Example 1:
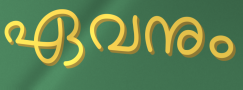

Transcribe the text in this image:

ഏവനും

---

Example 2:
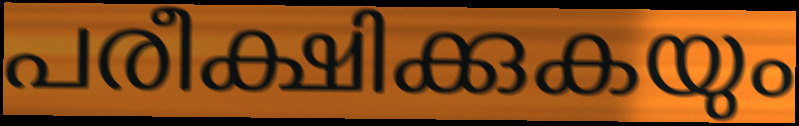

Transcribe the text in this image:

പരീക്ഷിക്കുകയും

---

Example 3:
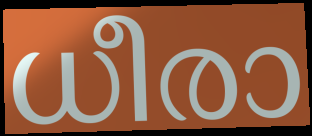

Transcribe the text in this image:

ധീരാ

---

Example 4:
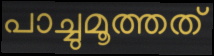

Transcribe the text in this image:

പാച്ചുമൂത്തത്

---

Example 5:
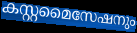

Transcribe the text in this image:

കസ്റ്റമൈസേഷനും